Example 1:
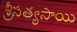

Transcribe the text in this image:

శ్రీసత్యసాయి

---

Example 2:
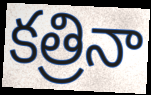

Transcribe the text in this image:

కత్రినా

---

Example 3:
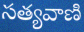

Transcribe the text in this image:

సత్యవాణి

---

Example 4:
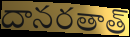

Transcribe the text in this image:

దానరతాత్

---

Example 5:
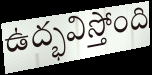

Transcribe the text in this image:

ఉద్భవిస్తోంది